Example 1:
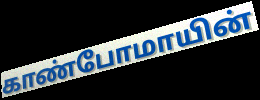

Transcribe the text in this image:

காண்போமாயின்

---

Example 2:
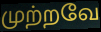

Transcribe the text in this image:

முற்றவே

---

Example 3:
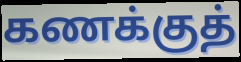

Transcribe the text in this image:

கணக்குத்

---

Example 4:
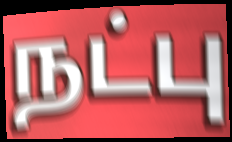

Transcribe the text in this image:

நட்பு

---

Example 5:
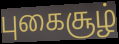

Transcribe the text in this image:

புகைசூழ்